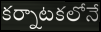
కర్నాటకలోనే